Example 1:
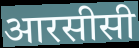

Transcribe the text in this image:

आरसीसी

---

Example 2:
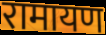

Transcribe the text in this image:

रामायण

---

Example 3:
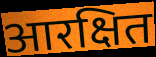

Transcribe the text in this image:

आरक्षित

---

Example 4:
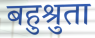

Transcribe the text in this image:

बहुश्रुता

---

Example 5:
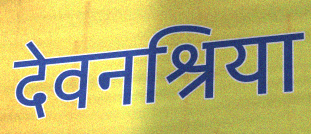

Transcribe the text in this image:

देवनश्रिया